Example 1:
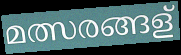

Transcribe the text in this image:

മത്സരങ്ങള്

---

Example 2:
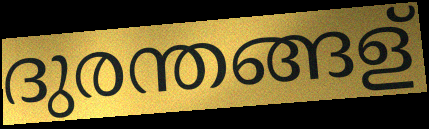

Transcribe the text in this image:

ദുരന്തങ്ങള്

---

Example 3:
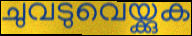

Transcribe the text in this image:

ചുവടുവെയ്ക്കുക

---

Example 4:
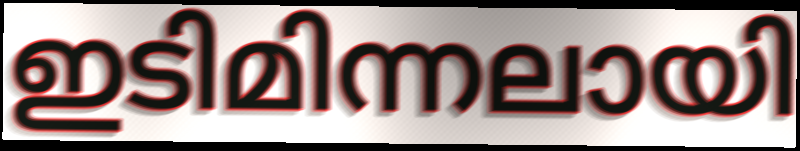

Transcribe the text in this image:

ഇടിമിന്നലായി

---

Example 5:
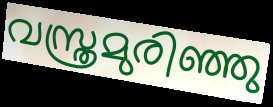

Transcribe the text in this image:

വസ്ത്രമുരിഞ്ഞു